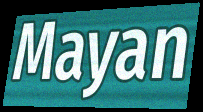
Mayan